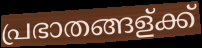
പ്രഭാതങ്ങള്ക്ക്